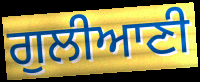
ਗੁਲੀਆਣੀ